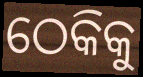
ଠେକିକୁ